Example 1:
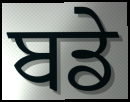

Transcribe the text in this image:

ਬਡੇ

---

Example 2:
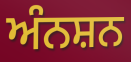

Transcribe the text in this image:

ਅੰਨਸ਼ਨ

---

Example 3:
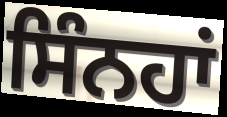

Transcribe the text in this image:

ਸਿੰਨਹਾਂ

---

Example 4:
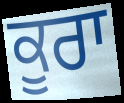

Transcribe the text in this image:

ਕੂਰਾ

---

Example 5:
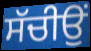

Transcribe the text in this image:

ਸੱਚੀਉਂ